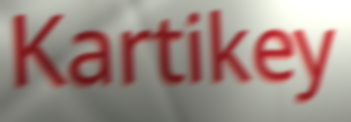
Kartikey